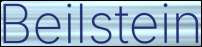
Beilstein